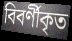
বিবর্ণীকৃত